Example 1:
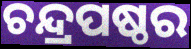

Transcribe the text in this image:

ଚନ୍ଦ୍ରପଷ୍ଠର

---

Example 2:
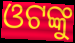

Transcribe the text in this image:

ଓଟଙ୍କୁ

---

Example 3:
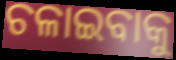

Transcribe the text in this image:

ଚଳାଇବାକୁ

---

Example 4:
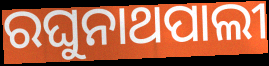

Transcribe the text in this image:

ରଘୁନାଥପାଲୀ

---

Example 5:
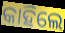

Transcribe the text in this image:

କାହିଲେ